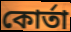
কোর্তা